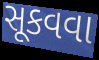
સૂકવવા